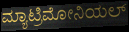
ಮ್ಯಾಟ್ರಿಮೋನಿಯಲ್